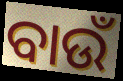
ବାଉଁ